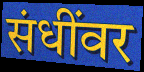
संधींवर